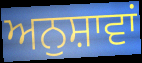
ਅਨੁਸ਼ਾਵਾਂ